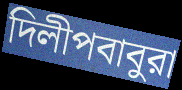
দিলীপবাবুরা